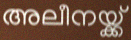
അലീനയ്ക്ക്